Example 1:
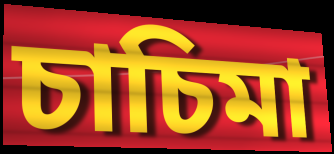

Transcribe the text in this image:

চাচিমা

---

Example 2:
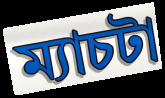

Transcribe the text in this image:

ম্যাচটা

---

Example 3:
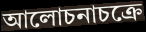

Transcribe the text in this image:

আলোচনাচক্রে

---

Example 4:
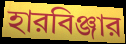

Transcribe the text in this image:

হারবিঞ্জার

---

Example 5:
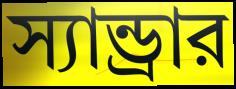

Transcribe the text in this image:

স্যান্ড্রার